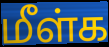
மீள்க